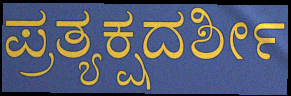
ಪ್ರತ್ಯಕ್ಷದರ್ಶೀ